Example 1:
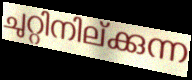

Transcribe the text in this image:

ചുറ്റിനില്ക്കുന്ന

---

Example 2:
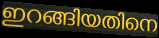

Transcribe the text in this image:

ഇറങ്ങിയതിനെ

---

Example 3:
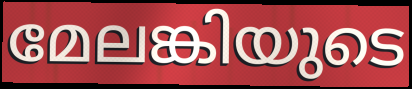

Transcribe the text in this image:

മേലങ്കിയുടെ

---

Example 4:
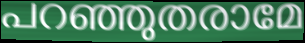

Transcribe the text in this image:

പറഞ്ഞുതരാമേ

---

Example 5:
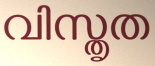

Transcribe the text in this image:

വിസ്തൃത